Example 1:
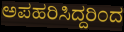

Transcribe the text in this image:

ಅಪಹರಿಸಿದ್ದರಿಂದ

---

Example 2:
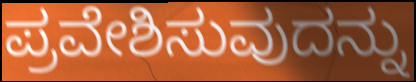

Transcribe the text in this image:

ಪ್ರವೇಶಿಸುವುದನ್ನು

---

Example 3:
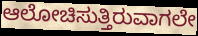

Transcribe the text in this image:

ಆಲೋಚಿಸುತ್ತಿರುವಾಗಲೇ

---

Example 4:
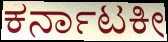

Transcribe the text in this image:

ಕರ್ನಾಟಕೀ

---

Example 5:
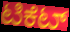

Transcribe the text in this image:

ಟಿಕೆಟ್